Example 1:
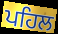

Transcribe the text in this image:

ਪਹਿਲ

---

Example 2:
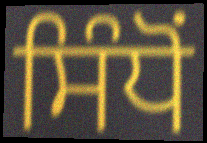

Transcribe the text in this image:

ਸਿੰਧੋਂ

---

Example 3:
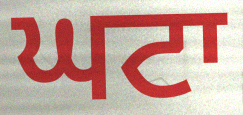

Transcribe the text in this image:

ਘਟਾ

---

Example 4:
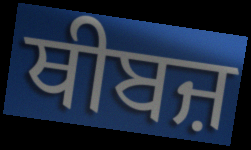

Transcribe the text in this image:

ਥੀਬਜ਼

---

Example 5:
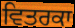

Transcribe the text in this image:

ਵਿਤਰਕਾ